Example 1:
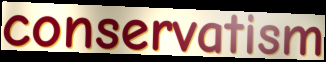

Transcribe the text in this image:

conservatism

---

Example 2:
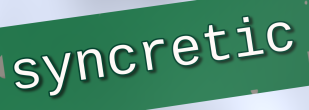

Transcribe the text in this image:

syncretic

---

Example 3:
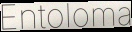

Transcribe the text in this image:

Entoloma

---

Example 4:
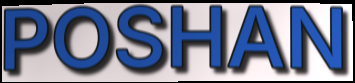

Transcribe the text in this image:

POSHAN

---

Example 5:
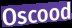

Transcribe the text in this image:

Oscood